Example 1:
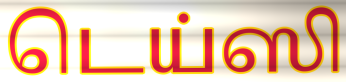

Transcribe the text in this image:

டெய்ஸி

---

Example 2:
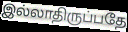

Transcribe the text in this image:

இல்லாதிருப்பதே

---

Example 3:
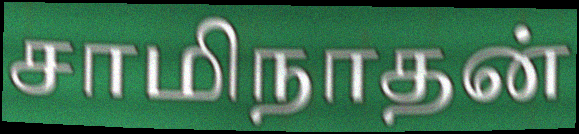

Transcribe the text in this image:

சாமிநாதன்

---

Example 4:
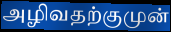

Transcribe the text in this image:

அழிவதற்குமுன்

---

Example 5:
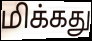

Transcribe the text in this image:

மிக்கது